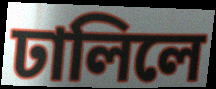
ঢালিলে